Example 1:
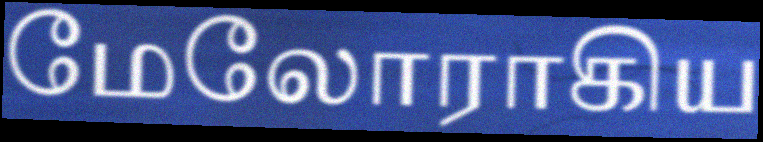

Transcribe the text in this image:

மேலோராகிய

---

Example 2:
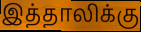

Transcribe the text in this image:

இத்தாலிக்கு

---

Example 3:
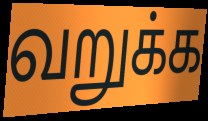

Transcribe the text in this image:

வறுக்க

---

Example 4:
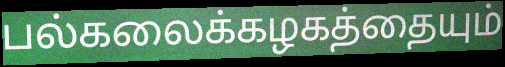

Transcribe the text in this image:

பல்கலைக்கழகத்தையும்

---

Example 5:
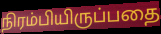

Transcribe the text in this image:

நிரம்பியிருப்பதை